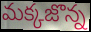
మక్కజొన్న